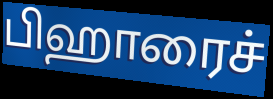
பிஹாரைச்